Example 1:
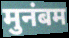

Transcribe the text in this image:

मुनंबम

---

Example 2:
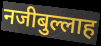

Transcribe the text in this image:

नजीबुल्लाह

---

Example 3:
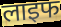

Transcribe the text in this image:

लाइफ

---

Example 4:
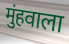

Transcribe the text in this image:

मुंहवाला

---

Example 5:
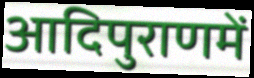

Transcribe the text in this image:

आदिपुराणमें